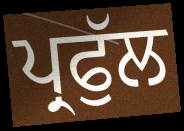
ਪ੍ਰਫੁੱਲ